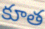
కూత